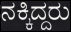
ನಕ್ಕಿದ್ದರು